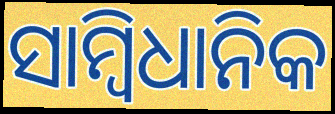
ସାମ୍ବିଧାନିକ